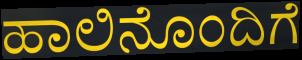
ಹಾಲಿನೊಂದಿಗೆ